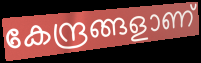
കേന്ദ്രങ്ങളാണ്